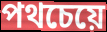
পথচেয়ে